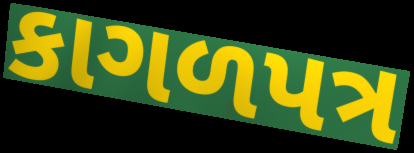
કાગળપત્ર